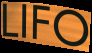
LIFO